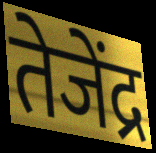
तेजेंद्र